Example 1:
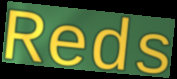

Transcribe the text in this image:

Reds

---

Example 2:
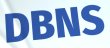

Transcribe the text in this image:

DBNS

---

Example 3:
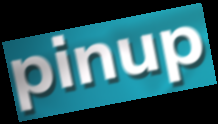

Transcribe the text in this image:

pinup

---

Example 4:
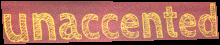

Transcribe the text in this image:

unaccented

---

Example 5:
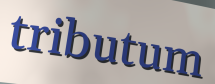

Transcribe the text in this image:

tributum